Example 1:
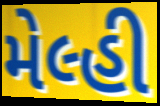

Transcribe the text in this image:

મેલ્હી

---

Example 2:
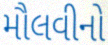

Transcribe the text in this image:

મૌલવીનો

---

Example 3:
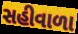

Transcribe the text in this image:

સહીવાળા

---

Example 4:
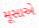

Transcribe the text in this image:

મૂસાએ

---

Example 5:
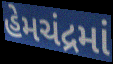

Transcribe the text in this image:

હેમચંદ્રમાં